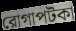
রোগাপটকা